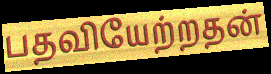
பதவியேற்றதன்